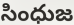
సింధుజ